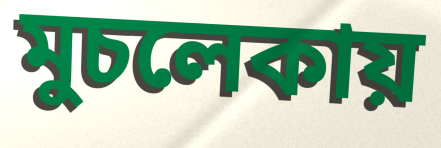
মুচলেকায়